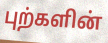
புற்களின்